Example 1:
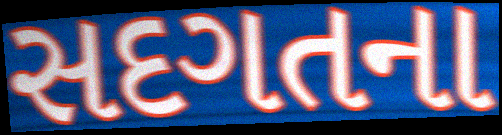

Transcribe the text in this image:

સદગતના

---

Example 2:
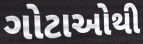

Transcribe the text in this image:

ગોટાઓથી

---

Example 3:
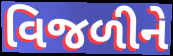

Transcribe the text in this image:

વિજળીને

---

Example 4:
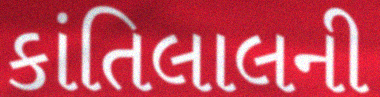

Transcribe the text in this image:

કાંતિલાલની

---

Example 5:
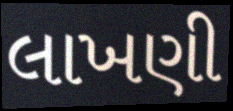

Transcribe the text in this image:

લાખણી